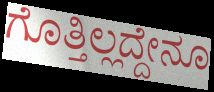
ಗೊತ್ತಿಲ್ಲದ್ದೇನೂ